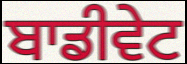
ਬਾਡੀਵੇਟ